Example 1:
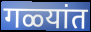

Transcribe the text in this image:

गळ्यांत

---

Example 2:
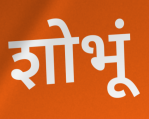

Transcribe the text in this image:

शोभूं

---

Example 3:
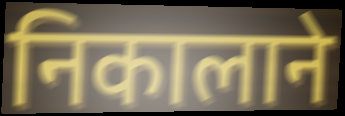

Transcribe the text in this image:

निकालाने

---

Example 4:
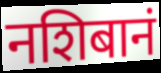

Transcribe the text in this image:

नशिबानं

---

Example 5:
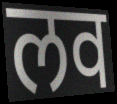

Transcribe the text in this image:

लव